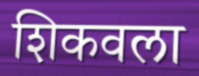
शिकवला